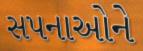
સપનાઓને